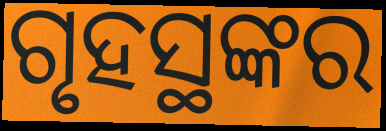
ଗୃହସ୍ଥଙ୍କର